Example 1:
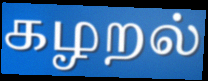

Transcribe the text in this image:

கழறல்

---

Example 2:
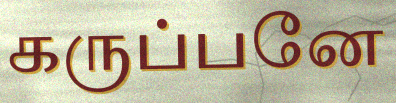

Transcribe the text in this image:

கருப்பனே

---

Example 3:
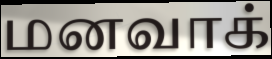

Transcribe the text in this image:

மனவாக்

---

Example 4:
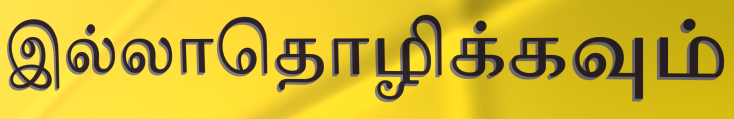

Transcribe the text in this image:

இல்லாதொழிக்கவும்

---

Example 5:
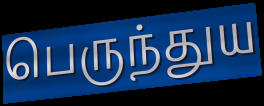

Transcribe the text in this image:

பெருந்துய